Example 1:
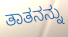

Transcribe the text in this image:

ತಾತನನ್ನು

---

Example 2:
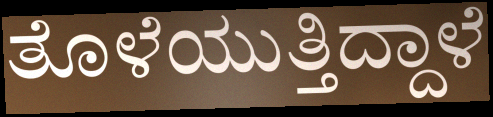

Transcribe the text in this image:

ತೊಳೆಯುತ್ತಿದ್ದಾಳೆ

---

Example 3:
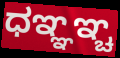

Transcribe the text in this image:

ಧಞ್ಞಞ್ಚ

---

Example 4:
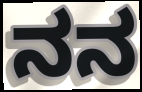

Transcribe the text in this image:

ನನ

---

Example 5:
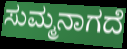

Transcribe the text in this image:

ಸುಮ್ಮನಾಗದೆ